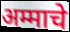
अम्माचे